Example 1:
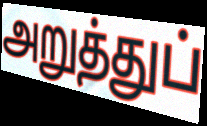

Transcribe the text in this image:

அறுத்துப்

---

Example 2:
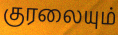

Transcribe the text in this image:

குரலையும்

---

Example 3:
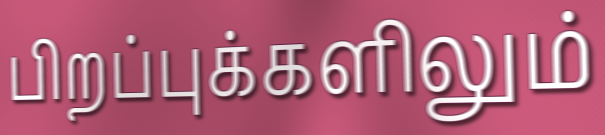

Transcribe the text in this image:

பிறப்புக்களிலும்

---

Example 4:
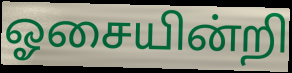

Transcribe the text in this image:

ஓசையின்றி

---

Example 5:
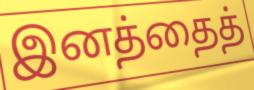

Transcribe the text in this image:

இனத்தைத்